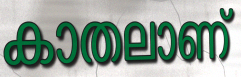
കാതലാണ്